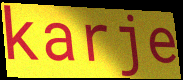
karje